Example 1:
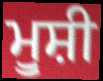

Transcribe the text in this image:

ਮੂਸ਼ੀ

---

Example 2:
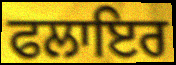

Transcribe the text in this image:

ਫਲਾਇਰ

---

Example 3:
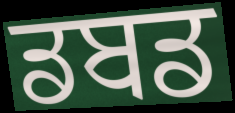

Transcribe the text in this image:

ਡਬਡ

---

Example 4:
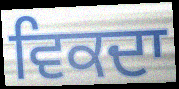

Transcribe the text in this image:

ਵਿਕਦਾ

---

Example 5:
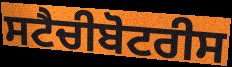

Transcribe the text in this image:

ਸਟੈਚੀਬੋਟਰੀਸ